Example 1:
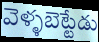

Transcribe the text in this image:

వెళ్ళబెట్టేడు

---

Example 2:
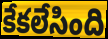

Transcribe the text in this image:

కేకలేసింది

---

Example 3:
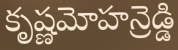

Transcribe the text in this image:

కృష్ణమోహన్రెడ్డి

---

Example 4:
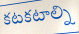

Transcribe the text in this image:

కటకటాల్ని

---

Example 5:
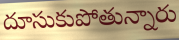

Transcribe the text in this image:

దూసుకుపోతున్నారు